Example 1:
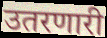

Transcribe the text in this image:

उतरणारी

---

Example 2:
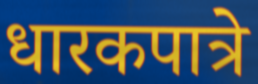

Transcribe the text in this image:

धारकपात्रे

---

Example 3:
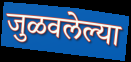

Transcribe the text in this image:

जुळवलेल्या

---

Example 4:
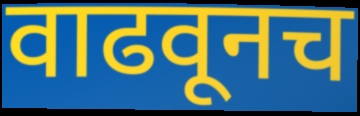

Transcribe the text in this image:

वाढवूनच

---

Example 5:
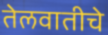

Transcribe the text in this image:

तेलवातीचे